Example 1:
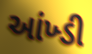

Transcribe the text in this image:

આંખ્ડી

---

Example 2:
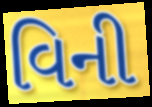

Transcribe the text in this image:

વિની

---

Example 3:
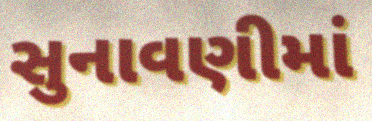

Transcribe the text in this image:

સુનાવણીમાં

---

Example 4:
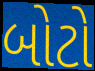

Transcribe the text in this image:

બોટો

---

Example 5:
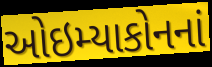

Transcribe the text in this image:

ઓઇમ્યાકોનનાં